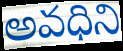
అవధిని